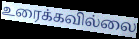
உரைக்கவில்லை